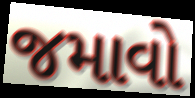
જમાવો